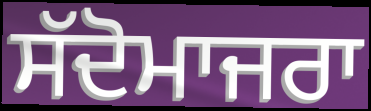
ਸੱਦੋਮਾਜਰਾ